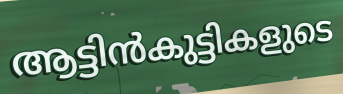
ആട്ടിൻകുട്ടികളുടെ